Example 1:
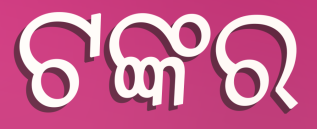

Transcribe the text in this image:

ଟଙ୍କର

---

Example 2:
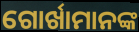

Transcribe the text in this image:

ଗୋର୍ଖାମାନଙ୍କ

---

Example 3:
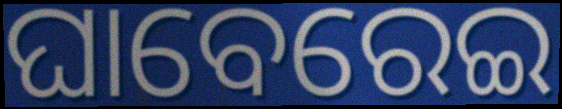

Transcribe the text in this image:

ଘାବେରେଇ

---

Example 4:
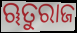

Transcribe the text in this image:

ୠତୁରାଜ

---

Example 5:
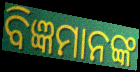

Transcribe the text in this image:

ବିଜ୍ଞମାନଙ୍କ